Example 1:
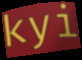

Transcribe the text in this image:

kyi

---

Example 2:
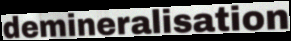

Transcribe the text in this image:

demineralisation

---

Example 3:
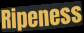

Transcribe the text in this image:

Ripeness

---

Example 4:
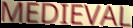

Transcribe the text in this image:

MEDIEVAL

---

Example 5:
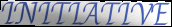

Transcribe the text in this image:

INITIATIVE